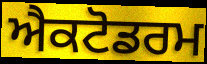
ਐਕਟੋਡਰਮ